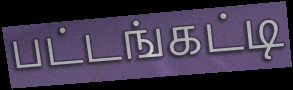
பட்டங்கட்டி